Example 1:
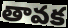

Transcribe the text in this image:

తావక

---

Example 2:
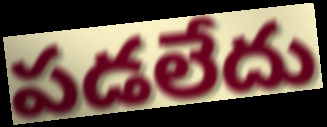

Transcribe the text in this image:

పడలేదు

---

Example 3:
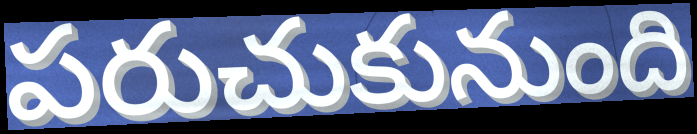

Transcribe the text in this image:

పరుచుకునుంది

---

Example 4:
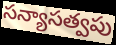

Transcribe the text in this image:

సన్యాసత్వపు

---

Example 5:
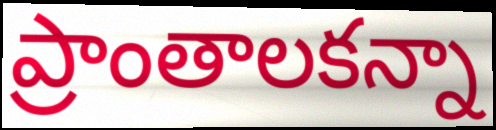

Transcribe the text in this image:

ప్రాంతాలకన్నా